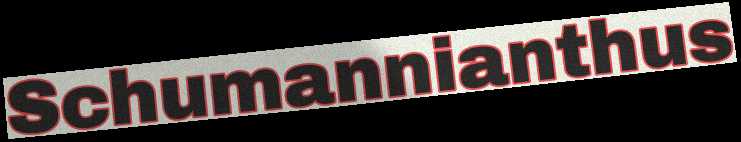
Schumannianthus